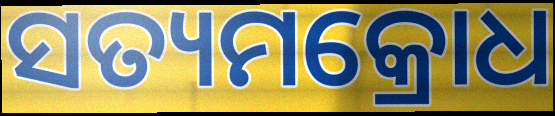
ସତ୍ୟମକ୍ରୋଧ